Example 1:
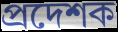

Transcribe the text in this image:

প্ৰদেশক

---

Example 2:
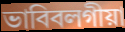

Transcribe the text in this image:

ভাবিবলগীয়া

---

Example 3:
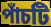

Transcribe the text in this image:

পাঁচটি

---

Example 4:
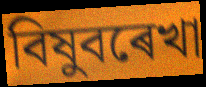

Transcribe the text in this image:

বিষুবৰেখা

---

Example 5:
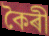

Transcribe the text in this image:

কৈৰী